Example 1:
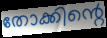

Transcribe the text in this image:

തോക്കിന്റെ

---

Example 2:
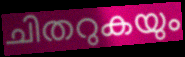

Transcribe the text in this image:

ചിതറുകയും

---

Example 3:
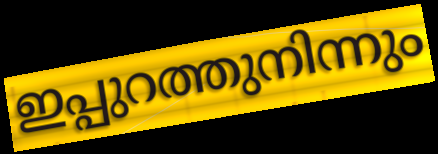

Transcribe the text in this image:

ഇപ്പുറത്തുനിന്നും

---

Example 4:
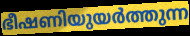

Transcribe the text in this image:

ഭീഷണിയുയർത്തുന്ന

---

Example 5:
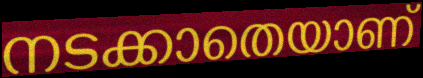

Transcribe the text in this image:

നടക്കാതെയാണ്